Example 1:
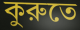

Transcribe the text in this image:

কুরুতে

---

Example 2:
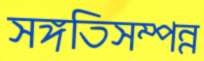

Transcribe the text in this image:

সঙ্গতিসম্পন্ন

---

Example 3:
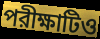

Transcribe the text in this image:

পরীক্ষাটিও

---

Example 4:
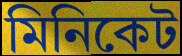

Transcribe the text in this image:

মিনিকেট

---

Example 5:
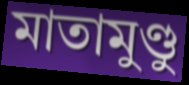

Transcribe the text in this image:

মাতামুণ্ডু